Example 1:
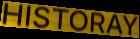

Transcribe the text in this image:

HISTORAY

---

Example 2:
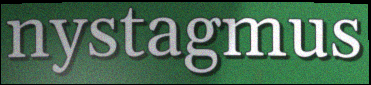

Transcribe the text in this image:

nystagmus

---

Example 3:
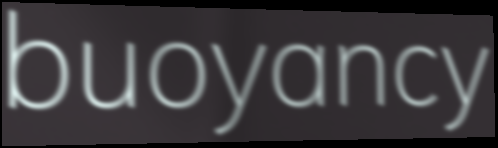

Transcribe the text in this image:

buoyancy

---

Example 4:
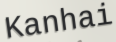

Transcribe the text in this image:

Kanhai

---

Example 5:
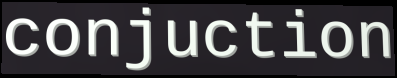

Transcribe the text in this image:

conjuction